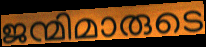
ജന്മിമാരുടെ